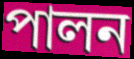
পালন